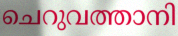
ചെറുവത്താനി